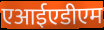
एआईएडीएम